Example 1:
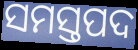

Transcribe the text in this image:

ସମସ୍ତପଦ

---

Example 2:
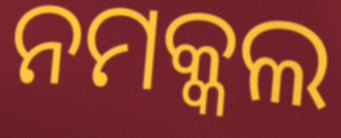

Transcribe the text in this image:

ନମକ୍କଲ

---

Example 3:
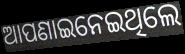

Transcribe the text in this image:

ଆପଣାଇନେଇଥିଲେ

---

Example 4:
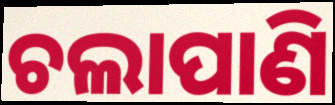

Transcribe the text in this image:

ଚଲାପାଣି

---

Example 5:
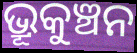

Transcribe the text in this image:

ଭ୍ରୂକୁଞ୍ଚନ